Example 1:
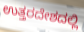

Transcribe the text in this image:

ಉತ್ತರದೇಶದಲ್ಲಿ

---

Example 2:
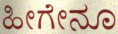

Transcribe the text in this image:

ಹೀಗೇನೂ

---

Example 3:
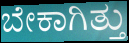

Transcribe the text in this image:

ಬೇಕಾಗಿತ್ತು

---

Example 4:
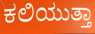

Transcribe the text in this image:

ಕಲಿಯುತ್ತಾ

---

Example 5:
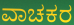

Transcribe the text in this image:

ವಾಚಕರ